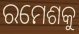
ରମେଶକୁ